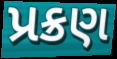
પ્રક્રણ